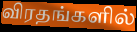
விரதங்களில்